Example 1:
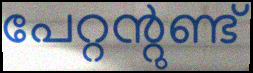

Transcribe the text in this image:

പേറ്റന്റുണ്ട്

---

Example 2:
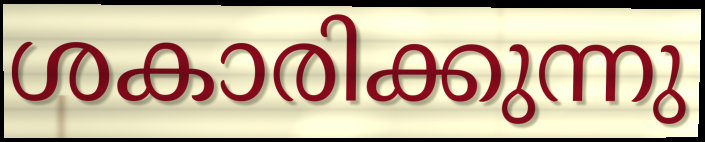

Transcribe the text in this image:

ശകാരിക്കുന്നു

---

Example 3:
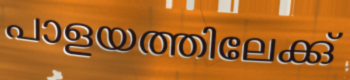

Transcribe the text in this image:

പാളയത്തിലേക്കു്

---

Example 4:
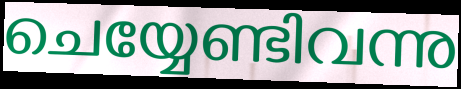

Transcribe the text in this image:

ചെയ്യേണ്ടിവന്നു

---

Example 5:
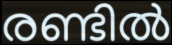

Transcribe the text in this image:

രണ്ടിൽ